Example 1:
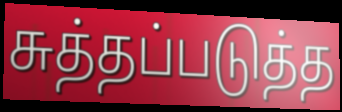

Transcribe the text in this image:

சுத்தப்படுத்த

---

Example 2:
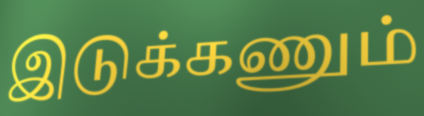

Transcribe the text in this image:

இடுக்கணும்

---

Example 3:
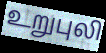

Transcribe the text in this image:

உறுபுலி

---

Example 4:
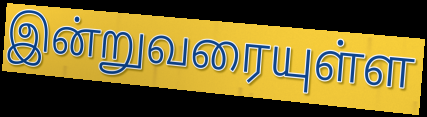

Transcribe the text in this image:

இன்றுவரையுள்ள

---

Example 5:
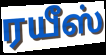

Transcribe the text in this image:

ரயீஸ்